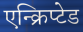
एन्क्रिप्टेड